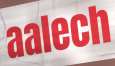
aalech